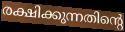
രക്ഷിക്കുന്നതിന്റെ